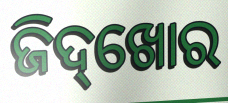
ଜିଦ୍‌ଖୋର